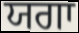
ਯਗਾ